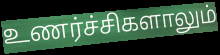
உணர்ச்சிகளாலும்